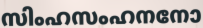
സിംഹസംഹനനോ